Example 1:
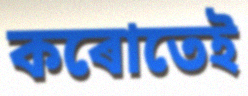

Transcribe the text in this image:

কৰোতেই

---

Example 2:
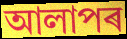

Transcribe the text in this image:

আলাপৰ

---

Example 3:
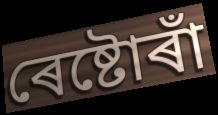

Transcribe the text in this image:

ৰেষ্টোৰাঁ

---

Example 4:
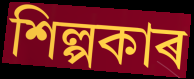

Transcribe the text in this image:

শিল্পকাৰ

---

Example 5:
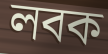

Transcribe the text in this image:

লবক